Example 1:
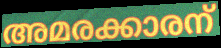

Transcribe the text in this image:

അമരക്കാരന്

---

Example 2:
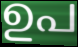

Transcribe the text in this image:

ഉപ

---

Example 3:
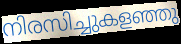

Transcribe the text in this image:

നിരസിച്ചുകളഞ്ഞു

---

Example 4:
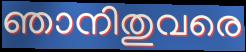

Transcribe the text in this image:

ഞാനിതുവരെ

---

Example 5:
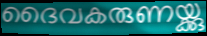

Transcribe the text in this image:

ദൈവകരുണയ്ക്കു